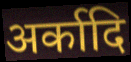
अर्कादि